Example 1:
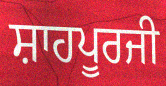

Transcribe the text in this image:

ਸ਼ਾਹਪੂਰਜੀ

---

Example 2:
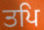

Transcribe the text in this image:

ਤਪਿ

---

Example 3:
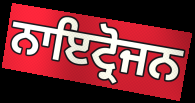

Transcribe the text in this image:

ਨਾਇਟ੍ਰੋਜਨ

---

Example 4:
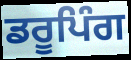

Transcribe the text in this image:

ਡਰੂਪਿੰਗ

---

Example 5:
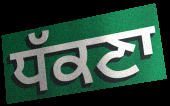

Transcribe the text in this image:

ਧੱਕਣਾ